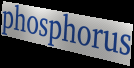
phosphorus